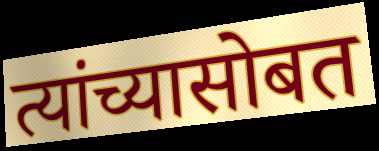
त्यांच्यासोबत